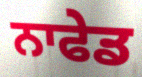
ਨਾਫੇਡ